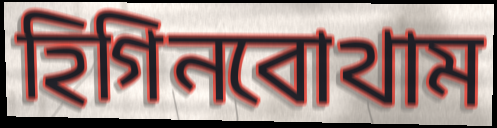
হিগিনবোথাম